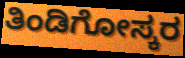
ತಿಂಡಿಗೋಸ್ಕರ